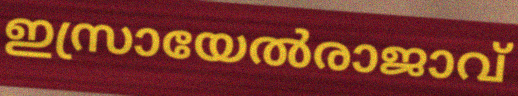
ഇസ്രായേൽരാജാവ്